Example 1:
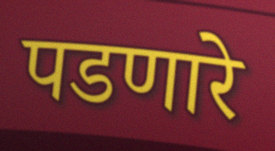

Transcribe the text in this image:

पडणारे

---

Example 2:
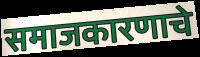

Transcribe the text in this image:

समाजकारणाचे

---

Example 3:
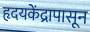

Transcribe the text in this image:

हृदयकेंद्रापासून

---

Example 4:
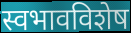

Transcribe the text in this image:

स्वभावविशेष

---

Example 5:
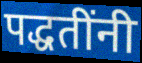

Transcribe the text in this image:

पद्धतींनी